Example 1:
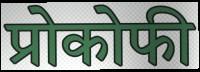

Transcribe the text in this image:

प्रोकोफी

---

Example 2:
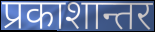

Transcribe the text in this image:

प्रकाशान्तर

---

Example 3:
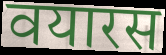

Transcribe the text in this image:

वयारस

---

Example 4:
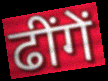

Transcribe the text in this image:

ढींगें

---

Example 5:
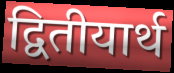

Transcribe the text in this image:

द्वितीयार्थ